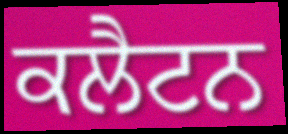
ਕਲੈਟਨ